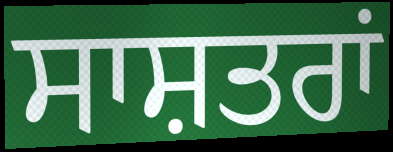
ਸਾਸ਼ਤਰਾਂ